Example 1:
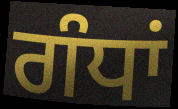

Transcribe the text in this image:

ਗੰਧਾਂ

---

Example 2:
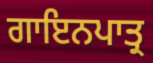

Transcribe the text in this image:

ਗਾਇਨਪਾਤ੍ਰ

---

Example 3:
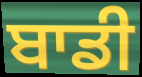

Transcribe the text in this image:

ਬਾਡੀ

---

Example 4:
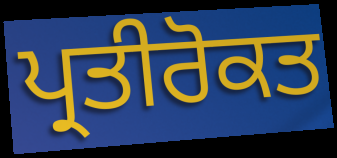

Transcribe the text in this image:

ਪ੍ਰਤੀਰੋਕਤ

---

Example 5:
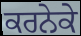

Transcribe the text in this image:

ਕਰਨੇਕੇ